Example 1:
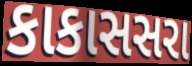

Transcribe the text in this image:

કાકાસસરા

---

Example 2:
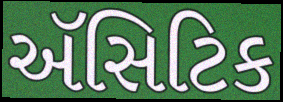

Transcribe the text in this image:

ઍસિટિક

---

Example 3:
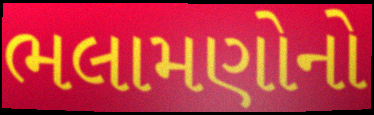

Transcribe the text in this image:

ભલામણોનો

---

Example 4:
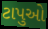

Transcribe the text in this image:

ટાપુઓ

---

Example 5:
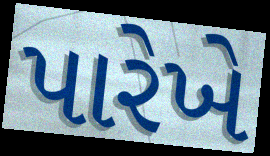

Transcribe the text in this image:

પારેખે